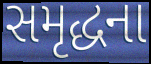
સમૃદ્ધના